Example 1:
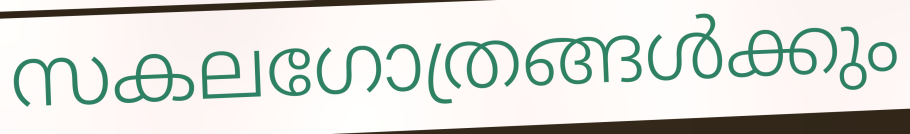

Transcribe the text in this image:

സകലഗോത്രങ്ങൾക്കും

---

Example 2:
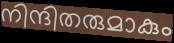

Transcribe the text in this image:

നിന്ദിതരുമാകും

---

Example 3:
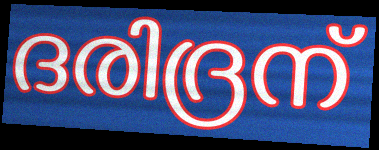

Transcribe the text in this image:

ദരിദ്രന്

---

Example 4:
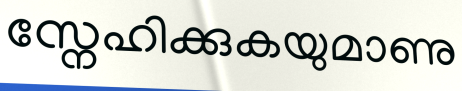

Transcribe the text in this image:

സ്നേഹിക്കുകയുമാണു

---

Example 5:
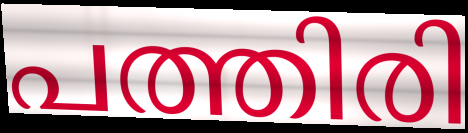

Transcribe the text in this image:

പത്തിരി